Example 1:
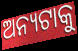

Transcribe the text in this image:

ଅନ୍ୟଟାକୁ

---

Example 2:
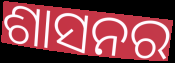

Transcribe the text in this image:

ଶାସନର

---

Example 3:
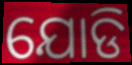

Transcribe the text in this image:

ଯୋଡି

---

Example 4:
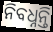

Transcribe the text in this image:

ନିବଧ୍ନନ୍ତି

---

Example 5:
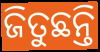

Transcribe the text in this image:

ଜିତୁଛନ୍ତି